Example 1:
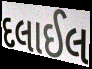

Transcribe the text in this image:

દલાઈલ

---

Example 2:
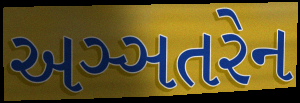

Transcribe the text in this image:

અઞ્ઞતરેન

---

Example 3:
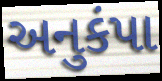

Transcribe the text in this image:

અનુકંપા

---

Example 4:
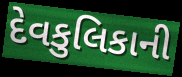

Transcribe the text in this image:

દેવકુલિકાની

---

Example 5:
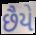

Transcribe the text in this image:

છૈયે